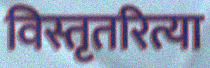
विस्तृतरित्या